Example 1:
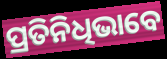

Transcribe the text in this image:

ପ୍ରତିନିଧିଭାବେ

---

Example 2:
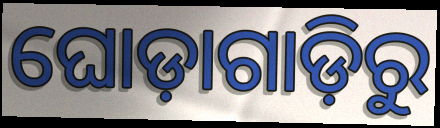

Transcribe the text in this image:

ଘୋଡ଼ାଗାଡ଼ିରୁ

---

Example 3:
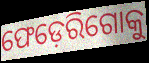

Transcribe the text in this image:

ଫେଡ଼େରିଗୋକୁ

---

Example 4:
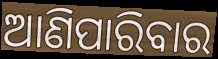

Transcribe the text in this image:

ଆଣିପାରିବାର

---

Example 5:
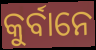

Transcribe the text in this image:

କୁର୍ବାନେ